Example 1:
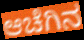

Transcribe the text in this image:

ಆಚೆಗಿನ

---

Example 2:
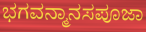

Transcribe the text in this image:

ಭಗವನ್ಮಾನಸಪೂಜಾ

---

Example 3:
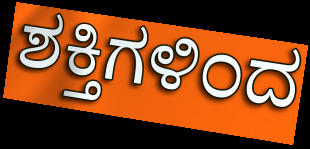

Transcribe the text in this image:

ಶಕ್ತಿಗಳಿಂದ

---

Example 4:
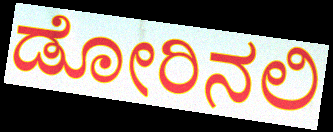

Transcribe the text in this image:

ಡೋರಿನಲಿ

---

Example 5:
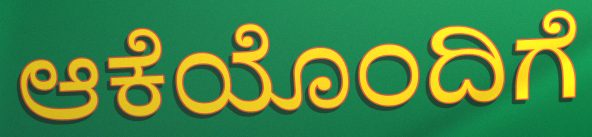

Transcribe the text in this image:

ಆಕೆಯೊಂದಿಗೆ